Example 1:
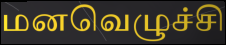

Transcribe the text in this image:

மனவெழுச்சி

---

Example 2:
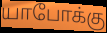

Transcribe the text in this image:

யாபோக்கு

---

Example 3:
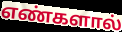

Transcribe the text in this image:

எண்களால்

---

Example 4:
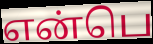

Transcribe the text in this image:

என்பெ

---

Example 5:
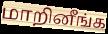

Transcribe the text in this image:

மாறினீங்க